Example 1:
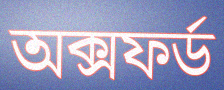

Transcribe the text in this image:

অক্সফৰ্ড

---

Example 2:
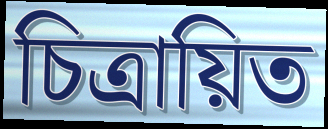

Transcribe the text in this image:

চিত্ৰায়িত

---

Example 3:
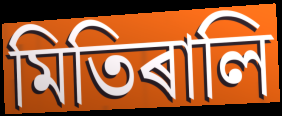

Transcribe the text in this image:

মিতিৰালি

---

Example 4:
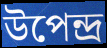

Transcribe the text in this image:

উপেন্দ্ৰ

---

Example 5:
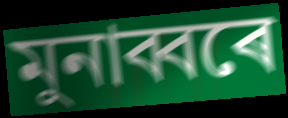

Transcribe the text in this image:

মুনাব্বৰে